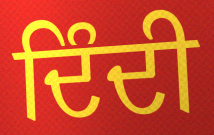
ਦਿੰਦੀ